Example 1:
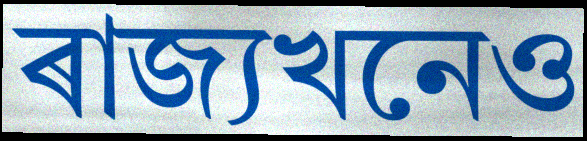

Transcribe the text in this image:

ৰাজ্যখনেও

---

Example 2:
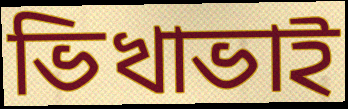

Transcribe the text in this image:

ভিখাভাই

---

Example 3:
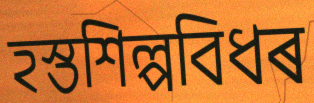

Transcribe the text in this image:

হস্তশিল্পবিধৰ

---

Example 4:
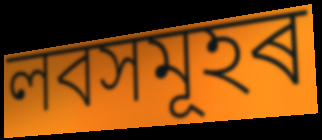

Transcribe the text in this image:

লবসমূহৰ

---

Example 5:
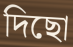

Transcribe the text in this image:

দিছো